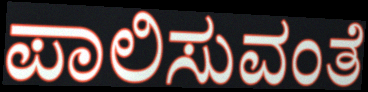
ಪಾಲಿಸುವಂತೆ